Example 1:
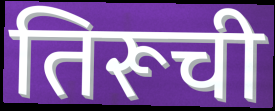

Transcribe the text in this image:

तिरूची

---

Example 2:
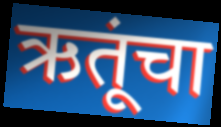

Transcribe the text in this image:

ऋतूंचा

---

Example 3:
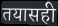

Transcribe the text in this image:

तयासही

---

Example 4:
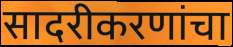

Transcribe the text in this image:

सादरीकरणांचा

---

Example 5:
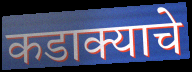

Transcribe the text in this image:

कडाक्याचे